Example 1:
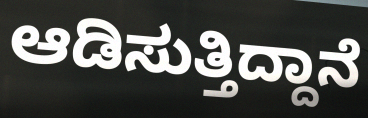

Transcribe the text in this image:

ಆಡಿಸುತ್ತಿದ್ದಾನೆ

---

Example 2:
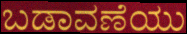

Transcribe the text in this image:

ಬಡಾವಣೆಯು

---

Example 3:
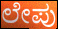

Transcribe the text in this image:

ಲೇಪು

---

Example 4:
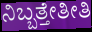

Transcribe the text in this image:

ನಿಬ್ಬತ್ತೇತೀತಿ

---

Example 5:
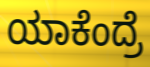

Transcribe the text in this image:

ಯಾಕೆಂದ್ರೆ